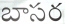
బాసర